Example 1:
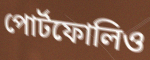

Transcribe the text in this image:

পোর্টফোলিও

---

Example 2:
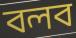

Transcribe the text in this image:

বলব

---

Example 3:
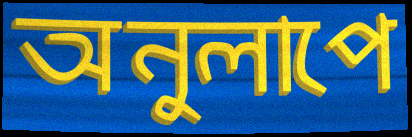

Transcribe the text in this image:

অনুলাপে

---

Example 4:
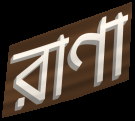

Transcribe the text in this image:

রাণা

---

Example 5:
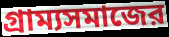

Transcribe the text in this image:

গ্রাম্যসমাজের